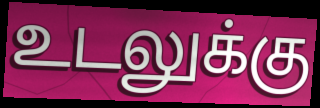
உடலுக்கு